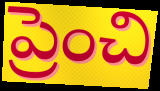
ప్రెంచి